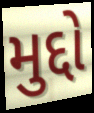
મુદ્દો